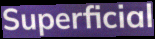
Superficial